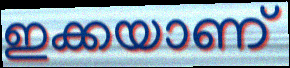
ഇക്കയാണ്